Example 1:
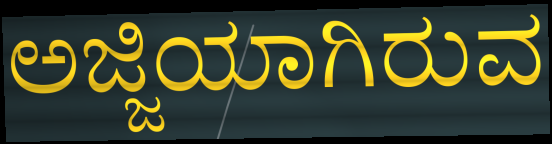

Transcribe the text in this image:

ಅಜ್ಜಿಯಾಗಿರುವ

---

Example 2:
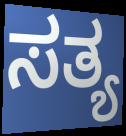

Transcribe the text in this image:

ಸತ್ಯ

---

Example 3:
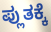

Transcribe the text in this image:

ಪ್ಲುತಕ್ಕೆ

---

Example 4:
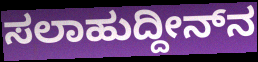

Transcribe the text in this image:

ಸಲಾಹುದ್ದೀನ್‍ನ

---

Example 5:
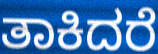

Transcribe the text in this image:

ತಾಕಿದರೆ